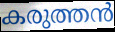
കരുത്തൻ